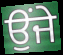
ਉਂਜੇ